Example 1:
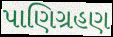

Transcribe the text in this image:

પાણિગ્રહણ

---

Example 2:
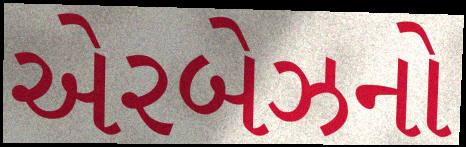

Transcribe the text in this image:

એરબેઝનો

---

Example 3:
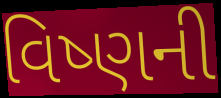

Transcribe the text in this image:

વિષ્ણની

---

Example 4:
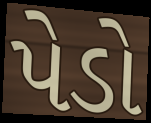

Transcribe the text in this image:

પેડો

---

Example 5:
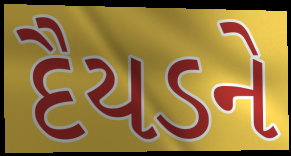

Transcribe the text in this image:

દૈયડને